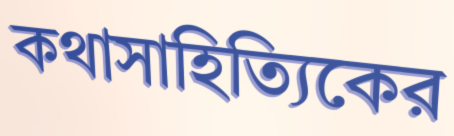
কথাসাহিত্যিকের